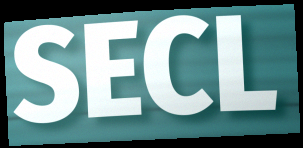
SECL